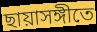
ছায়াসঙ্গীতে